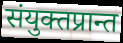
संयुक्तप्रान्त